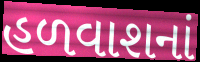
હળવાશનાં